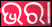
ଭରା